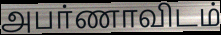
அபர்ணாவிடம்